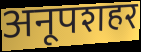
अनूपशहर